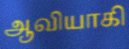
ஆவியாகி